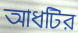
আধটির